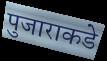
पुजाराकडे